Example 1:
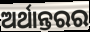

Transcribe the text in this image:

ଅର୍ଥାନ୍ତରର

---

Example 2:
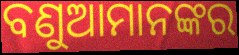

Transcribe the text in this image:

ବଣୁଆମାନଙ୍କର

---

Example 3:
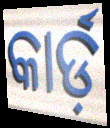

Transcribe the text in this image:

କାର୍ଡ଼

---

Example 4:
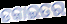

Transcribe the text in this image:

ଡକାଇତର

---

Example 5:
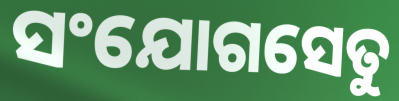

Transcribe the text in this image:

ସଂଯୋଗସେତୁ